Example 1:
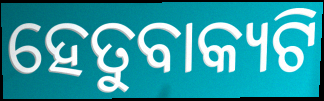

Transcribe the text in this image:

ହେତୁବାକ୍ୟଟି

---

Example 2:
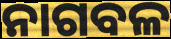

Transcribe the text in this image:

ନାଗବଳ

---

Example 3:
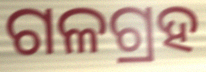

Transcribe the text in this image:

ଗଳଗ୍ରହ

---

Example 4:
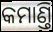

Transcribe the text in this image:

କମାଣ୍ତି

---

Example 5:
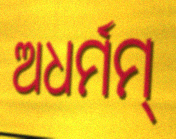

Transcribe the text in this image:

ଅଧର୍ମମ୍